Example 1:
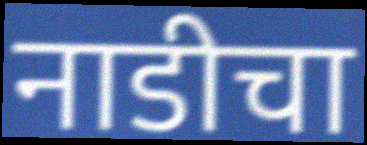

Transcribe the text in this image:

नाडीचा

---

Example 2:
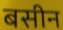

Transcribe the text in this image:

बसीन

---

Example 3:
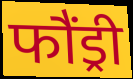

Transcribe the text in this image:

फौंड्री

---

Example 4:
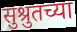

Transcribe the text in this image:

सुश्रुतच्या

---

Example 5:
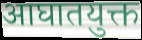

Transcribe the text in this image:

आघातयुक्त